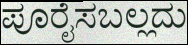
ಪೂರೈಸಬಲ್ಲದು